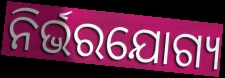
ନିର୍ଭରଯୋଗ୍ୟ